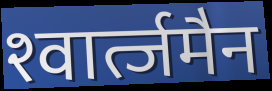
श्वार्त्जमैन